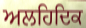
ਅਲਹਿਦਿਕ